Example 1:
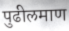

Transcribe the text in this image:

पुढीलमाण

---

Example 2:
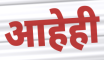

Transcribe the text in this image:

आहेही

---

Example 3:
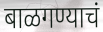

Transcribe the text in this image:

बाळगण्याचं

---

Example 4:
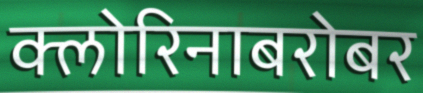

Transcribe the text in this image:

क्लोरिनाबरोबर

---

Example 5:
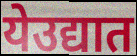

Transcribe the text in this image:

येउद्यात